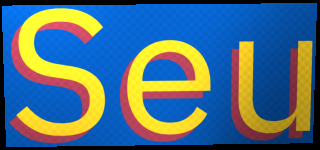
Seu